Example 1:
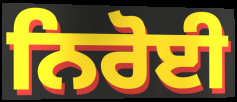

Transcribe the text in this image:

ਨਿਰੋਈ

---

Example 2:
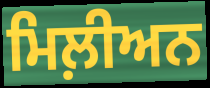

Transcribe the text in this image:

ਮਿਲ਼ੀਅਨ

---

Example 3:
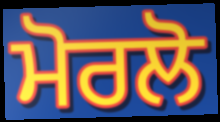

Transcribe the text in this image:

ਮੋਰਲੋ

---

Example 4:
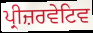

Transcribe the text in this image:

ਪ੍ਰੀਜ਼ਰਵੇਟਿਵ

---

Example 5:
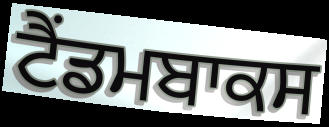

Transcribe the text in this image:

ਟੈਂਡਮਬਾਕਸ